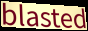
blasted